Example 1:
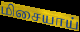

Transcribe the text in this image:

மிசையாய்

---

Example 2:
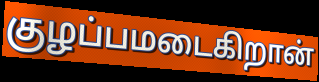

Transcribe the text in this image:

குழப்பமடைகிறான்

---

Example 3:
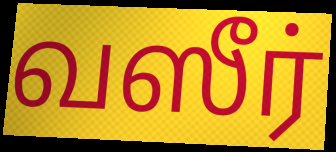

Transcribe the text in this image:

வஸீர்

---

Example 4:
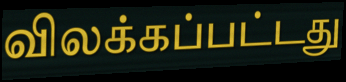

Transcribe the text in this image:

விலக்கப்பட்டது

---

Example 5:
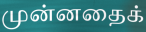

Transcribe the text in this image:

முன்னதைக்